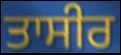
ਤਾਸੀਰ